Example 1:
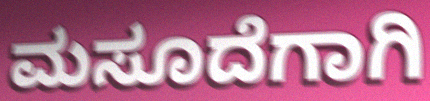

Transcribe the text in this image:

ಮಸೂದೆಗಾಗಿ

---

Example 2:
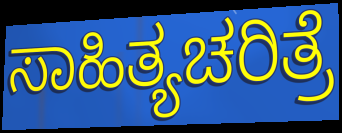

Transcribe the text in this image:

ಸಾಹಿತ್ಯಚರಿತ್ರೆ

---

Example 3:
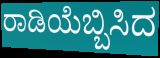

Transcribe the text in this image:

ರಾಡಿಯೆಬ್ಬಿಸಿದ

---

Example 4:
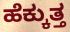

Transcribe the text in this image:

ಹೆಕ್ಕುತ್ತ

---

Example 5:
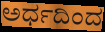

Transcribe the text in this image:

ಅರ್ಧದಿಂದ